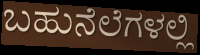
ಬಹುನೆಲೆಗಳಲ್ಲಿ